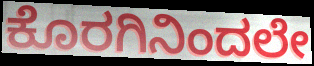
ಕೊರಗಿನಿಂದಲೇ